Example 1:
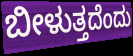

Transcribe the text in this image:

ಬೀಳುತ್ತದೆಂದು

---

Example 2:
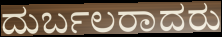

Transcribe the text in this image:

ದುರ್ಬಲರಾದರು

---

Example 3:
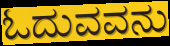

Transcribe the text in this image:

ಓದುವವನು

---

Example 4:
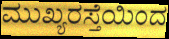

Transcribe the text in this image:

ಮುಖ್ಯರಸ್ತೆಯಿಂದ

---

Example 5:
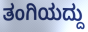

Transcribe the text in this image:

ತಂಗಿಯದ್ದು